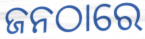
ଜନଠାରେ